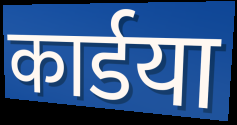
कार्डया